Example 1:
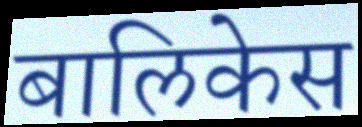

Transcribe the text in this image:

बालिकेस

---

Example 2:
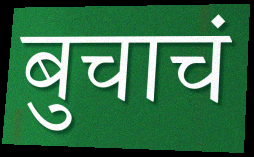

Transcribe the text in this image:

बुचाचं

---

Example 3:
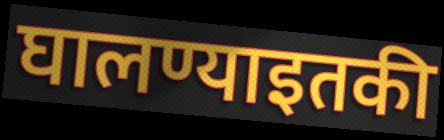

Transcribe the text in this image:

घालण्याइतकी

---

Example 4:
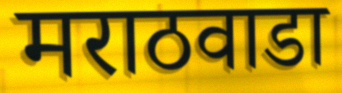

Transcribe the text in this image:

मराठवाडा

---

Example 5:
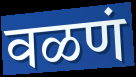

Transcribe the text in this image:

वळणं